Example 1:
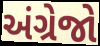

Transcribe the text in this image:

અંગ્રેજો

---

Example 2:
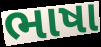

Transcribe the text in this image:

ભાષા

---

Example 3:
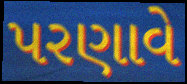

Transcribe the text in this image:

પરણાવે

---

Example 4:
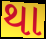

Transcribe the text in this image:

થા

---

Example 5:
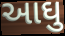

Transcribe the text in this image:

આઘુ